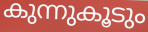
കുന്നുകൂടും